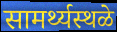
सामर्थ्यस्थळे